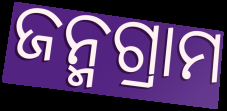
ଜନ୍ମଗ୍ରାମ